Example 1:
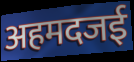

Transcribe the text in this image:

अहमदजई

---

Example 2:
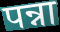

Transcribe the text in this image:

पन्ना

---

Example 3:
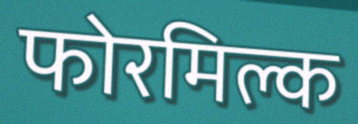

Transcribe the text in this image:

फोरमिल्क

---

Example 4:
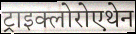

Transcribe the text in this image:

ट्राइक्लोरोएथेन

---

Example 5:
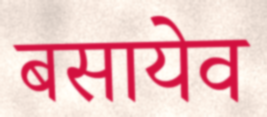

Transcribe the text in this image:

बसायेव